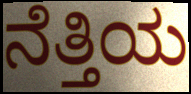
ನೆತ್ತಿಯ